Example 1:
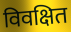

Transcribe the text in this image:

विवक्षित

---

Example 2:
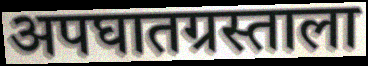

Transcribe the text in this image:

अपघातग्रस्ताला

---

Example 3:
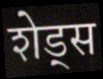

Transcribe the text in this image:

शेड्स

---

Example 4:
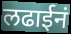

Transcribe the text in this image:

लढाईनं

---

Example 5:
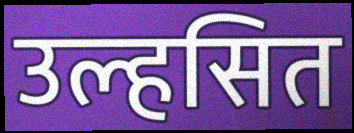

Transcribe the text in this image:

उल्हसित